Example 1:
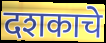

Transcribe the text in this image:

दशकाचे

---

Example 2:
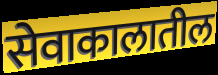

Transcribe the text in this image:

सेवाकालातील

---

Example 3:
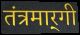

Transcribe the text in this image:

तंत्रमार्गी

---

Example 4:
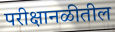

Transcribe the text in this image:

परीक्षानळीतील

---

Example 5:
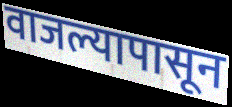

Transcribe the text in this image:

वाजल्यापासून